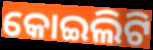
କୋଇଲିଟି